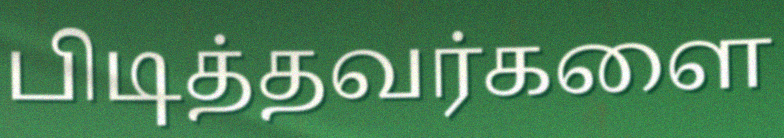
பிடித்தவர்களை